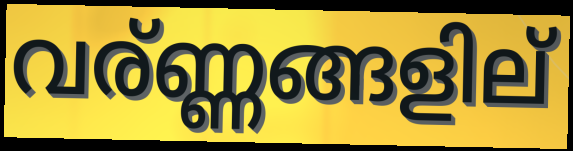
വര്ണ്ണങ്ങളില്